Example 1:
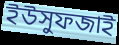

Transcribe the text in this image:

ইউসুফজাই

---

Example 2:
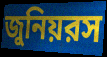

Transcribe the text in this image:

জুনিয়রস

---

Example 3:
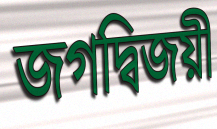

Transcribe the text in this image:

জগদ্বিজয়ী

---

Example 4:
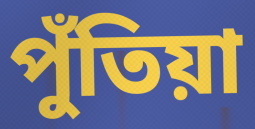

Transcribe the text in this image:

পুঁতিয়া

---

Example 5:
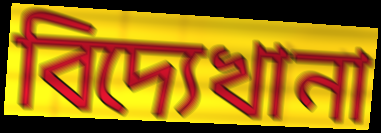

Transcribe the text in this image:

বিদ্যেখানা